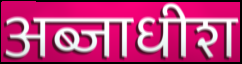
अब्जाधीश